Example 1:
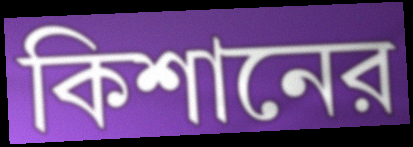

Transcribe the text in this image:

কিশানের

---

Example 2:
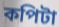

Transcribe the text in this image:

কপিটা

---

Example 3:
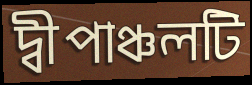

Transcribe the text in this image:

দ্বীপাঞ্চলটি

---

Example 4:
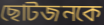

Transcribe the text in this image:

ছোটজনকে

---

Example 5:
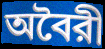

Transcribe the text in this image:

অবৈরী